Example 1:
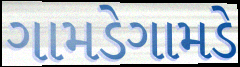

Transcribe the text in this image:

ગામડેગામડે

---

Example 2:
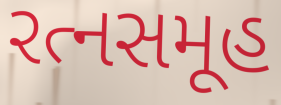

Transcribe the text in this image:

રત્નસમૂહ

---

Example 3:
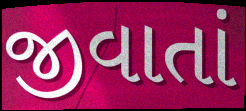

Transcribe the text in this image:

જીવાતાં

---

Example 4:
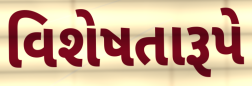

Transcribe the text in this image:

વિશેષતારૂપે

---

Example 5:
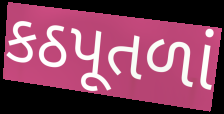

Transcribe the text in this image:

કઠપૂતળાં